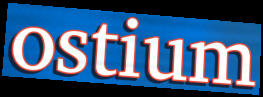
ostium